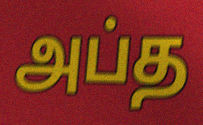
அப்த